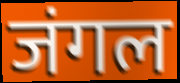
जंगल